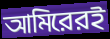
আমিরেরই